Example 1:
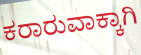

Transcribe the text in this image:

ಕರಾರುವಾಕ್ಕಾಗಿ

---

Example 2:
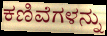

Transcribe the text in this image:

ಕಣಿವೆಗಳನ್ನು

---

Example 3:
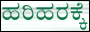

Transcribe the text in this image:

ಹರಿಹರಕ್ಕೆ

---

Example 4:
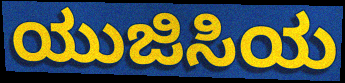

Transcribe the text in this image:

ಯುಜಿಸಿಯ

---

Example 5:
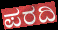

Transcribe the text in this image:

ಪರದಿ